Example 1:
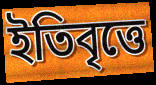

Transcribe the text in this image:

ইতিবৃত্তে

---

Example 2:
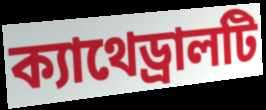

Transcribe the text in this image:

ক্যাথেড্রালটি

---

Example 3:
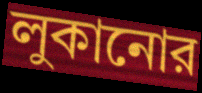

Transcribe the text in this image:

লুকানোর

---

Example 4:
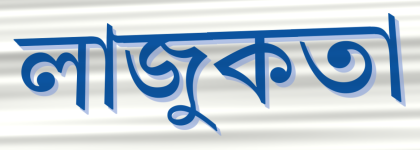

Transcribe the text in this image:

লাজুকতা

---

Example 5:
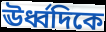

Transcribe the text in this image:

ঊর্ধ্বদিকে